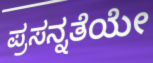
ಪ್ರಸನ್ನತೆಯೇ